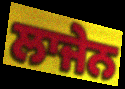
ਲਾਜੇਨ